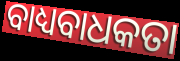
ବାଧ୍ୟବାଧକତା